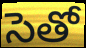
సెతో